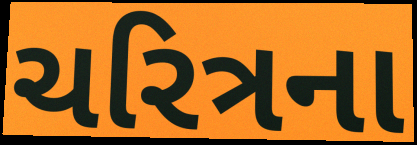
ચરિત્રના